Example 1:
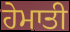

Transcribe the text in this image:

ਹੇਮਾਤੀ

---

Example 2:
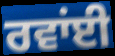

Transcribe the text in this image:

ਰਵਾਂਈ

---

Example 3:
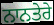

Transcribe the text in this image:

ਨਾਨਤੇਰੇ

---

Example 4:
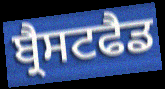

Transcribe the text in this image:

ਬ੍ਰੈਸਟਫੈਡ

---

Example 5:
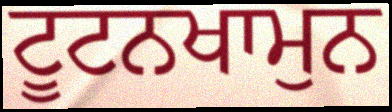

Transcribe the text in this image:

ਟੂਟਨਖਾਮੁਨ